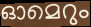
ഓമെറും